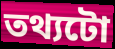
তথ্যটো